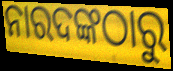
ନାରଦଙ୍କଠାରୁ